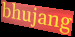
bhujang